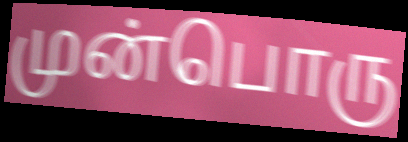
முன்பொரு